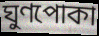
ঘুণপোকা